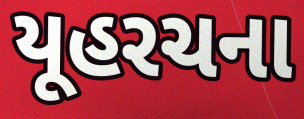
યૂહરચના